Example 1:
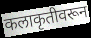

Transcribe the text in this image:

कलाकृतीवरून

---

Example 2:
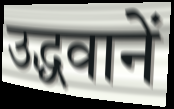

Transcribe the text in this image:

उद्धवानें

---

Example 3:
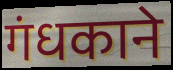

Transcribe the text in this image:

गंधकाने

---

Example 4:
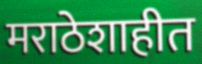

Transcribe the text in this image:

मराठेशाहीत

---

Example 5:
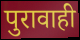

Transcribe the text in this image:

पुरावाही